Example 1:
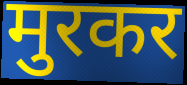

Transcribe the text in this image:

मुरकर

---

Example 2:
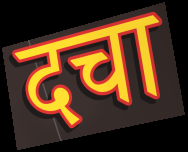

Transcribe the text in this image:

दचा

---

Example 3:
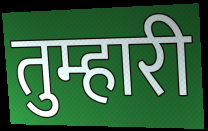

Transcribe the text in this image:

तुम्‍हारी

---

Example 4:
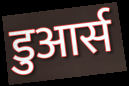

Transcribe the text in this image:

डुआर्स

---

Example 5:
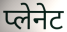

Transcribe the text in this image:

प्लेनेट